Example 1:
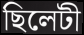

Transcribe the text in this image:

ছিলেটী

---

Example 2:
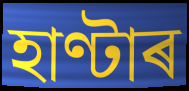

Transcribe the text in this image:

হাণ্টাৰ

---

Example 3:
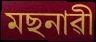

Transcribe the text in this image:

মছনাৱী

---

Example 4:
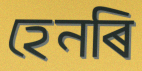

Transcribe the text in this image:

হেনৰি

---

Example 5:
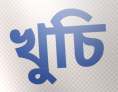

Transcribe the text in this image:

খুচি